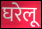
घरेलू